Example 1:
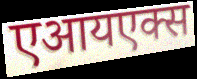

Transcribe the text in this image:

एआयएक्स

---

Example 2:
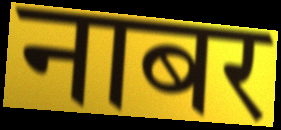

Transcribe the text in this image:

नाबर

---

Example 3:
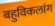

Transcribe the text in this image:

बहुविकलांग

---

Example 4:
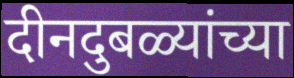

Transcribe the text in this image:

दीनदुबळ्यांच्या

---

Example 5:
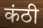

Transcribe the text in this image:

कंठी